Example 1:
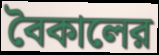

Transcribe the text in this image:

বৈকালের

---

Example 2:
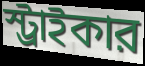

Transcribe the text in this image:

স্ট্রাইকার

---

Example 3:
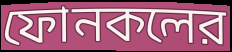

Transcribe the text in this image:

ফোনকলের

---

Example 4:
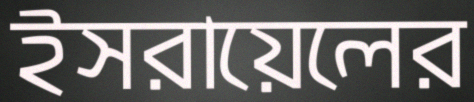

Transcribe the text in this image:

ইসরায়েলের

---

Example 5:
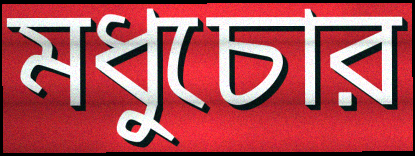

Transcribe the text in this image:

মধুচোর